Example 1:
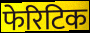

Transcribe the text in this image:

फेरिटिक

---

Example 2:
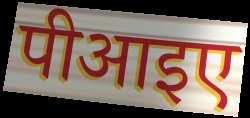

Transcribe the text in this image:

पीआइए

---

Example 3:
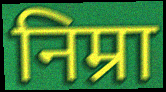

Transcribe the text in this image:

निम्रा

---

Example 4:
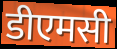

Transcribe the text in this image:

डीएमसी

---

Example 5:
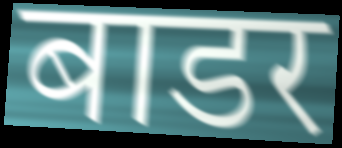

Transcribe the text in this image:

बाडर